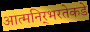
आत्मनिर्भरतेकडे